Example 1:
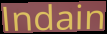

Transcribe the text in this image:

Indain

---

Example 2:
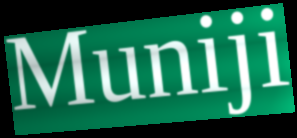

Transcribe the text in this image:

Muniji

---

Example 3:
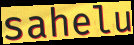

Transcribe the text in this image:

sahelu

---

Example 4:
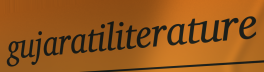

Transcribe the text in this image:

gujaratiliterature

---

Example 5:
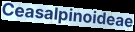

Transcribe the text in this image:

Ceasalpinoideae